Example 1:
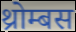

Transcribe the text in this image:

थ्रोम्बस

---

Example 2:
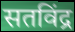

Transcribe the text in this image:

सतविंद्र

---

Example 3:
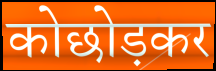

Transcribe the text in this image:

कोछोड़कर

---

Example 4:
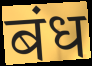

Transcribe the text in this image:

बंध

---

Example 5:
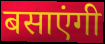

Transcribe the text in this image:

बसाएंगी